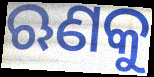
ଋଣକୁ